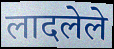
लादलेले